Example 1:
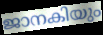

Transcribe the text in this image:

ജാനകിയും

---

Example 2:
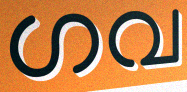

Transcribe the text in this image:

ഗവ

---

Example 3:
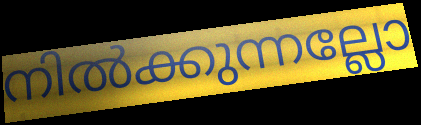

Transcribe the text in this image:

നിൽക്കുന്നല്ലോ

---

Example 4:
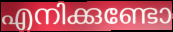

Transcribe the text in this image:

എനിക്കുണ്ടോ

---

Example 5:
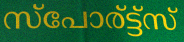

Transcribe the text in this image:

സ്പോര്ട്ട്സ്